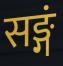
सङ्गं